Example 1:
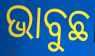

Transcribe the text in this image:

ଭାବୁଛ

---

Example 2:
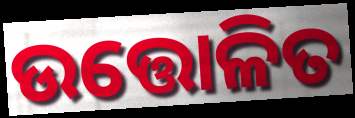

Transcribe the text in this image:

ଉତ୍ତୋଳିତ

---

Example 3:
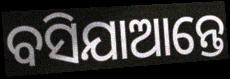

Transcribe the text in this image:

ବସିଯାଆନ୍ତେ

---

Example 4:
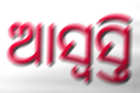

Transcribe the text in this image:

ଆସ୍ୱସ୍ତି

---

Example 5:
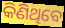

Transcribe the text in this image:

କିଣିଥିବେ